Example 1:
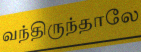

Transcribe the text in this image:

வந்திருந்தாலே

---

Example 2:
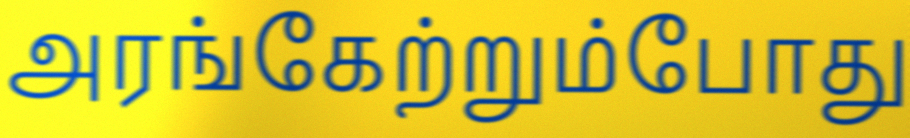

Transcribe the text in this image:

அரங்கேற்றும்போது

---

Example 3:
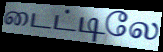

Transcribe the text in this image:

டைட்டிலே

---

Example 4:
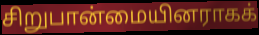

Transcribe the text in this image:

சிறுபான்மையினராகக்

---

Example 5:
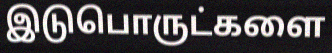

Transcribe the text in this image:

இடுபொருட்களை